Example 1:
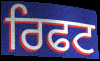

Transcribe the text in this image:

ਰਿਫਟ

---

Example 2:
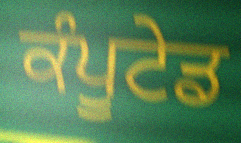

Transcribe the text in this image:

ਕੰਪੂਟੇਡ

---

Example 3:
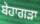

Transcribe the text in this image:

ਬੇਹਾਗੜਾ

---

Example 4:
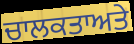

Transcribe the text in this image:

ਚਾਲਕਤਾਅਤੇ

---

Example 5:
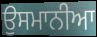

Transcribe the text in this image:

ਉਸਮਾਨੀਆ